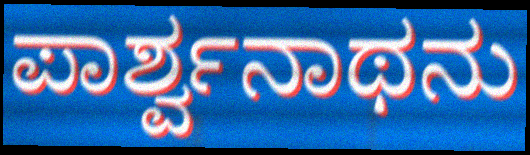
ಪಾರ್ಶ್ವನಾಥನು